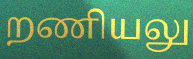
றணியலு